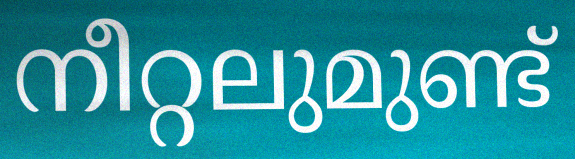
നീറ്റലുമുണ്ട്